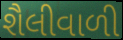
શૈલીવાળી